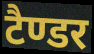
टैण्डर